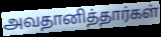
அவதானித்தார்கள்